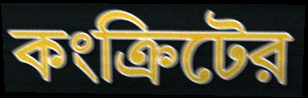
কংক্রিটের